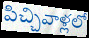
పిచ్చివాళ్లలో